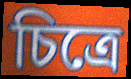
চিত্রে